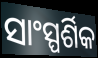
ସାଂସ୍ପର୍ଶିକ